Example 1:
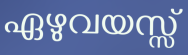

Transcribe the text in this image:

ഏഴുവയസ്സ്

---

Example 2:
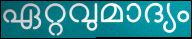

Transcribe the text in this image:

ഏറ്റവുമാദ്യം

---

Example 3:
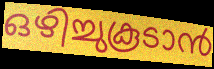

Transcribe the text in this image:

ഒഴിച്ചുകൂടാൻ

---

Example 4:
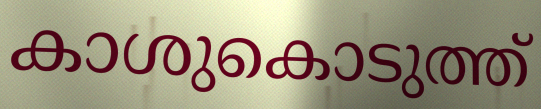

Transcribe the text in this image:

കാശുകൊടുത്ത്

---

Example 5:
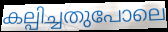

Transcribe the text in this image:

കല്പിച്ചതുപോലെ